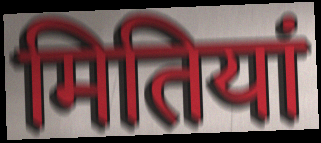
मितियां